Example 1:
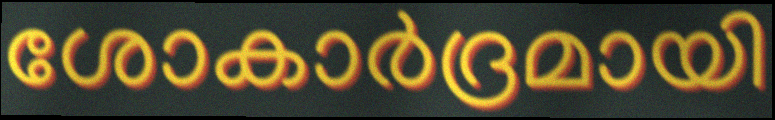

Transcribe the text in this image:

ശോകാർദ്രമായി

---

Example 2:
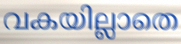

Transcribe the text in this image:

വകയില്ലാതെ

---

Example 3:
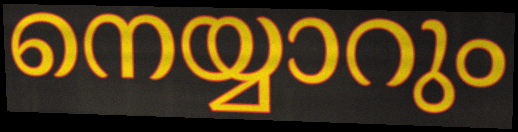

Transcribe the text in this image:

നെയ്യാറും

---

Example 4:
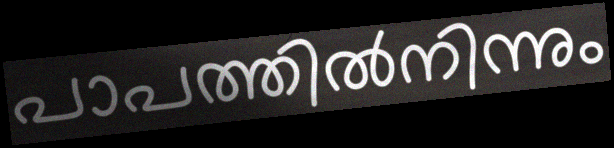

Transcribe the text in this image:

പാപത്തിൽനിന്നും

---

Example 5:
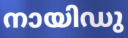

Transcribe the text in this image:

നായിഡു